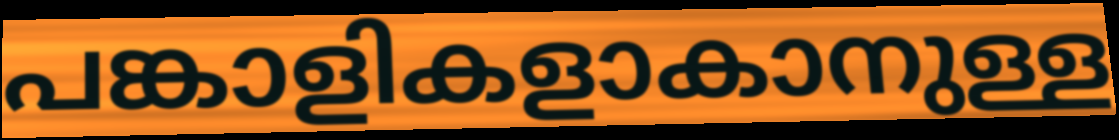
പങ്കാളികളാകാനുള്ള